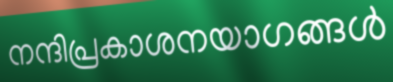
നന്ദിപ്രകാശനയാഗങ്ങൾ